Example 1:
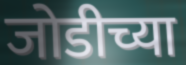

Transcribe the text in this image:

जोडीच्या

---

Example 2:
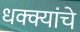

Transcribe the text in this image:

धक्क्यांचे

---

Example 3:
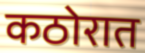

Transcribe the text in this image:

कठोरात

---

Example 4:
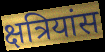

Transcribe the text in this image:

क्षत्रियांस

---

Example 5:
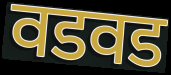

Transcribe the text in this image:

वडवड